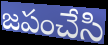
జపంచేసి